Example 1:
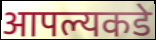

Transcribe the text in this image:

आपल्यकडे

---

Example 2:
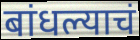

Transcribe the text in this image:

बांधल्याचं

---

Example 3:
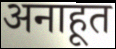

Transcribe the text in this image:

अनाहूत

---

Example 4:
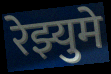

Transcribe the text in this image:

रेझ्युमे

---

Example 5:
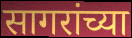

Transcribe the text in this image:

सागरांच्या